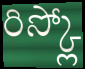
రిస్క్లో